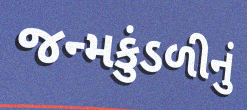
જન્મકુંડળીનું